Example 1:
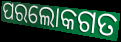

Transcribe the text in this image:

ପରଲୋକଗତ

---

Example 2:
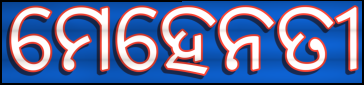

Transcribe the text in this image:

ମେହେନତୀ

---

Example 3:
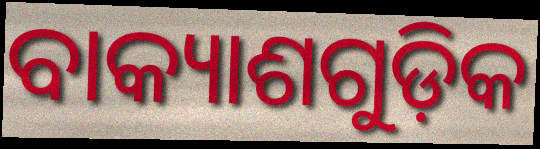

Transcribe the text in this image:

ବାକ୍ୟାଶଗୁଡ଼ିକ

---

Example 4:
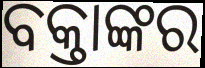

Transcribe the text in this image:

ବକ୍ତାଙ୍କର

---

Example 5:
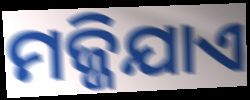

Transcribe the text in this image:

ମଜ୍ଜିଯାଏ